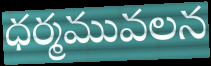
ధర్మమువలన